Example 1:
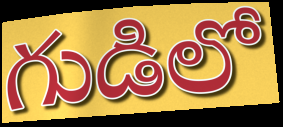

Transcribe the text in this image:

గుడిలో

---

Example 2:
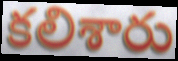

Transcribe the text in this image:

కలిశారు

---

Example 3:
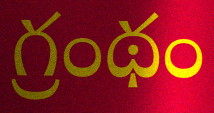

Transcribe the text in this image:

గ్రంథం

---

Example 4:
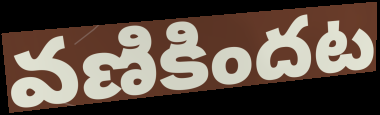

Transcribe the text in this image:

వణికిందట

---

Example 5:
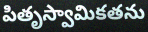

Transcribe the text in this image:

పితృస్వామికతను